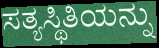
ಸತ್ಯಸ್ಥಿತಿಯನ್ನು